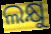
ଲକ୍ଷୁ